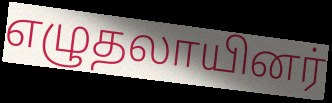
எழுதலாயினர்